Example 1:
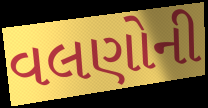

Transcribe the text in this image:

વલણોની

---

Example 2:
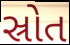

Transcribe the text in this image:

સ્રોત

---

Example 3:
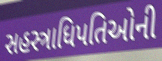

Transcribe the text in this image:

સહસ્ત્રાધિપતિઓની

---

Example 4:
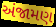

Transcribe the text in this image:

અંજામણ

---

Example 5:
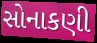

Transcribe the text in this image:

સોનાકણી